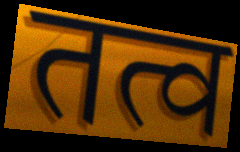
तत्व